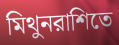
মিথুনরাশিতে